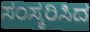
ಸಂಸ್ಕರಿಸಿದ